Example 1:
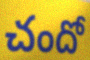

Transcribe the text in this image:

చందో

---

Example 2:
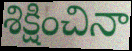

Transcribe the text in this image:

శిక్షించినా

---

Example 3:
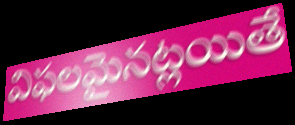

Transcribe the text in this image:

విఫలమైనట్లయితే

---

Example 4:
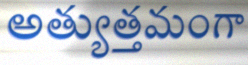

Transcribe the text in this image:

అత్యుత్తమంగా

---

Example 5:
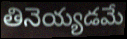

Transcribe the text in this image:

తినెయ్యడమే